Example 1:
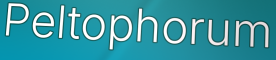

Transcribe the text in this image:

Peltophorum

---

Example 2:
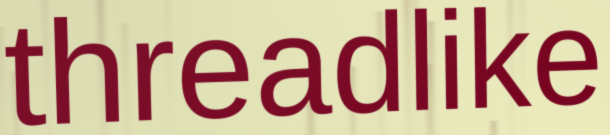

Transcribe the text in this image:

threadlike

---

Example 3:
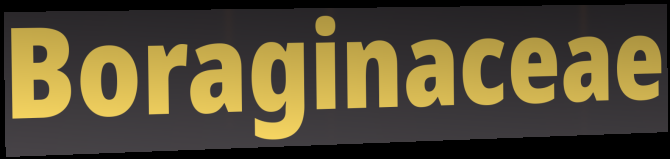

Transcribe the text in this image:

Boraginaceae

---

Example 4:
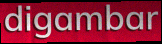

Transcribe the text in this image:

digambar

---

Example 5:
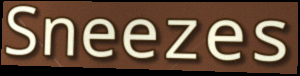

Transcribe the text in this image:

Sneezes